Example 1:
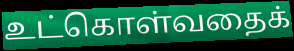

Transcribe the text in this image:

உட்கொள்வதைக்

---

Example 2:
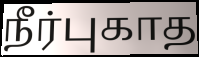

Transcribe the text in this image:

நீர்புகாத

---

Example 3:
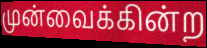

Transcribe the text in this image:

முன்வைக்கின்ற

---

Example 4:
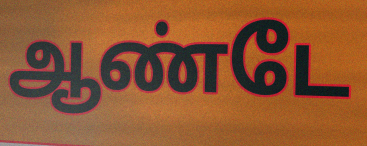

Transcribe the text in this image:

ஆண்டே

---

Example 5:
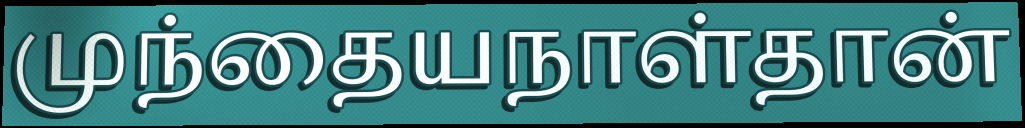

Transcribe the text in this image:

முந்தையநாள்தான்